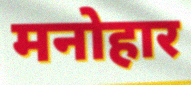
मनोहार